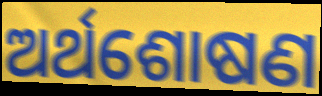
ଅର୍ଥଶୋଷଣ